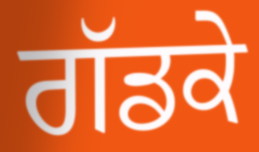
ਗੱਡਕੇ